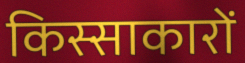
किस्साकारों